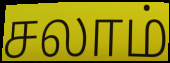
சலாம்